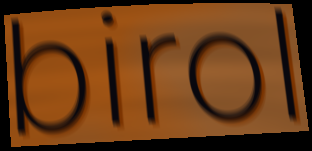
birol